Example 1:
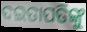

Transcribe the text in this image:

ଦଇତାପତିଙ୍କୁ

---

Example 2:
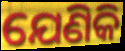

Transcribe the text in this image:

ଯେଣିକି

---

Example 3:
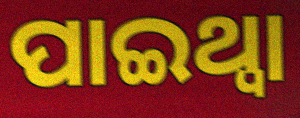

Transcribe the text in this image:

ପାଇଥ୍ବା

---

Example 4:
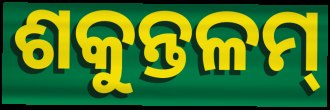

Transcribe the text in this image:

ଶକୁନ୍ତଳମ୍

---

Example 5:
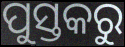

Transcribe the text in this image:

ପୁସ୍ତକରୁ